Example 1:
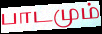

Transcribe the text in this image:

பாடமும்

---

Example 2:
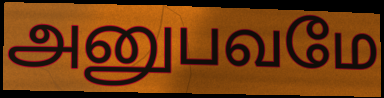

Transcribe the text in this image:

அனுபவமே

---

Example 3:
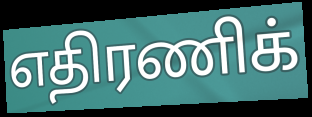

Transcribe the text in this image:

எதிரணிக்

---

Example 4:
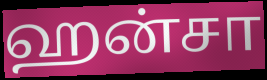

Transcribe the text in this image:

ஹன்சா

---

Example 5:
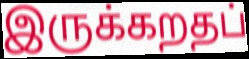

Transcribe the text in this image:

இருக்கறதப்